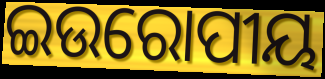
ଇଉରୋପୀୟ